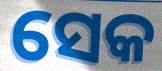
ସେକ